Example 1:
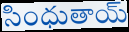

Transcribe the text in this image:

సింధుతాయ్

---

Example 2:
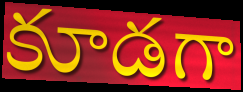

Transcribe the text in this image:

కూడగా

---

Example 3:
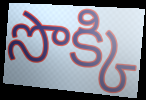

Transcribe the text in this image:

సొక్కి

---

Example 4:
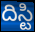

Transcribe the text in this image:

దిస్టి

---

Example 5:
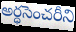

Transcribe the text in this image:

అర్ధసెంచరీని